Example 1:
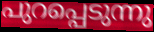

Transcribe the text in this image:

പുറപ്പെടുന്നു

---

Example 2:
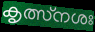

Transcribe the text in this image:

കൃത്സ്നശഃ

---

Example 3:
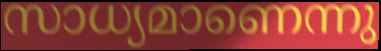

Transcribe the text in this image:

സാധ്യമാണെന്നു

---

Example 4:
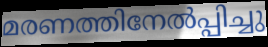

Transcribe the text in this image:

മരണത്തിനേൽപ്പിച്ചു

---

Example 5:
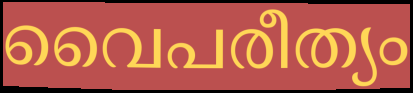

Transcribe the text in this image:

വൈപരീത്യം